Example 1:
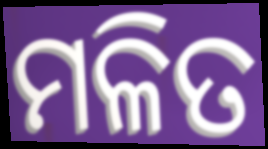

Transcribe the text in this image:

ମଳିତ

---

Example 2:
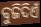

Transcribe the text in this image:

ବୁଜିଦିଏଁ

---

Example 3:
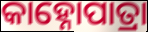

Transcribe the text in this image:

କାହ୍ନୋପାତ୍ରା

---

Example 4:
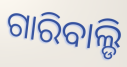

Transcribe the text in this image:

ଗାରିବାଲ୍ଡି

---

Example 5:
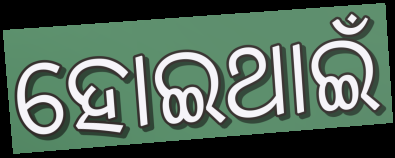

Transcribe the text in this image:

ହୋଇଥାଇଁ